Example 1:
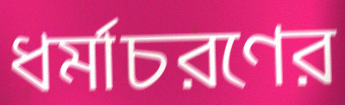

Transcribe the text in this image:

ধর্মাচরণের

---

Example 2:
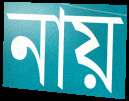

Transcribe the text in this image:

নায়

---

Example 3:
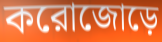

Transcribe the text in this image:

করোজোড়ে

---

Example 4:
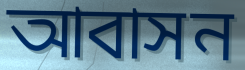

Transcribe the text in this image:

আবাসন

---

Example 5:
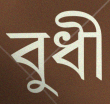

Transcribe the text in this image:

বুধী